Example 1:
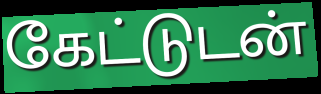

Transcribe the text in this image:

கேட்டுடன்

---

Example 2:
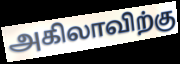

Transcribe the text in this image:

அகிலாவிற்கு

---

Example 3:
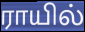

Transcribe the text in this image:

ராயில்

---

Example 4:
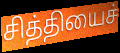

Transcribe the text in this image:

சித்தியைச்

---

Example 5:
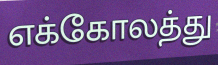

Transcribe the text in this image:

எக்கோலத்து